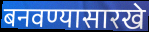
बनवण्यासारखे